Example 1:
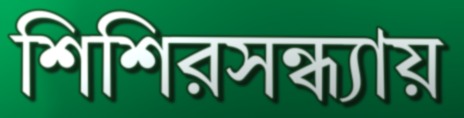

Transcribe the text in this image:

শিশিরসন্ধ্যায়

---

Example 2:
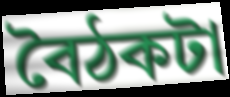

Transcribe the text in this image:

বৈঠকটা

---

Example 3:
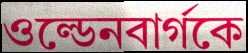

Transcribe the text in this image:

ওল্ডেনবার্গকে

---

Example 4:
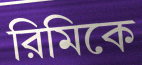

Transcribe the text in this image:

রিমিকে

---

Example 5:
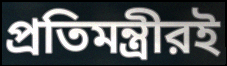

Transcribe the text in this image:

প্রতিমন্ত্রীরই